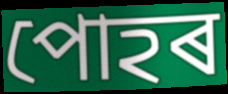
পোহৰ